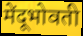
मेंदूभोवती